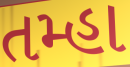
તમ્હા